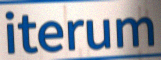
iterum